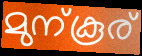
മുന്കൂര്